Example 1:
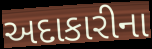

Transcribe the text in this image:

અદાકારીના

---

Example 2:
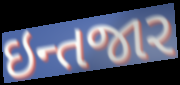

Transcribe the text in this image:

ઇન્તજાર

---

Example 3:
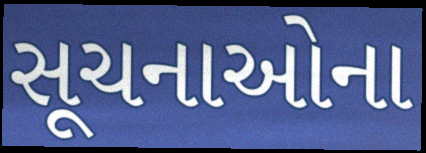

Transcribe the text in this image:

સૂચનાઓના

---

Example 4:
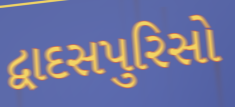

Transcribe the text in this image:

દ્વાદસપુરિસો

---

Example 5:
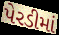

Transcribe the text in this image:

પેરડીમાં